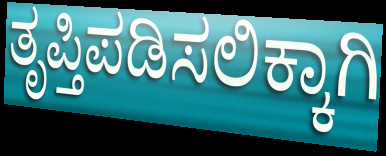
ತೃಪ್ತಿಪಡಿಸಲಿಕ್ಕಾಗಿ